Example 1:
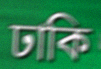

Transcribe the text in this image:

ঢাকি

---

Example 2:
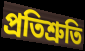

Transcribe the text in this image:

প্ৰতিশ্ৰুতি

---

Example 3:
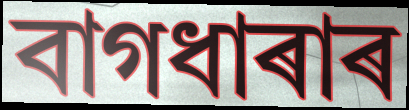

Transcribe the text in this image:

বাগধাৰাৰ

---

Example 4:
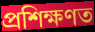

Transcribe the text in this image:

প্ৰশিক্ষণত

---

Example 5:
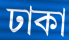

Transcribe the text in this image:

ঢাকা